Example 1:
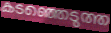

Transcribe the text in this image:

കടഞ്ഞെടുത്ത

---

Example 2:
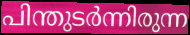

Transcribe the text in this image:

പിന്തുടർന്നിരുന്ന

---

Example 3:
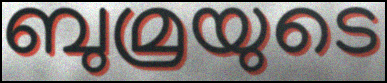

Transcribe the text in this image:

ബുമ്രയുടെ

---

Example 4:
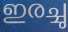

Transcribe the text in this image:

ഇരച്ചു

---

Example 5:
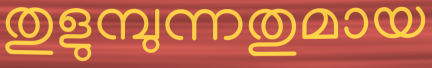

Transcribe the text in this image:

തുളുമ്പുന്നതുമായ